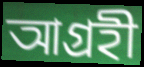
আগ্রহী